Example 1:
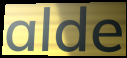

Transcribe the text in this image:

alde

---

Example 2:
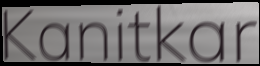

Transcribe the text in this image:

Kanitkar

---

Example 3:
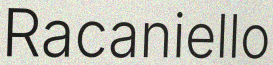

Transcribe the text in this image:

Racaniello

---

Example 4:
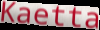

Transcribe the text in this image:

Kaetta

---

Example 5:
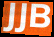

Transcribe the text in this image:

JJB